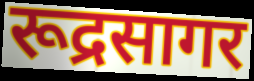
रूद्रसागर